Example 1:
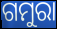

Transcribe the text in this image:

ଗମୁରା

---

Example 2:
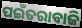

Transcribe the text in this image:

ପଇଁତରାବାଜି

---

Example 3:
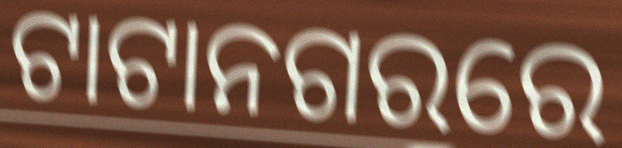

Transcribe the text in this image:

ଟାଟାନଗରରେ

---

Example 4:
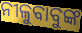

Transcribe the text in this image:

ନୀଳୁବାବୁଙ୍କ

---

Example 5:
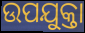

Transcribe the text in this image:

ଉପଯୁକ୍ତା